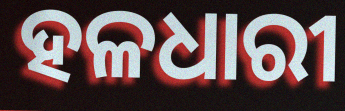
ହଳଧାରୀ